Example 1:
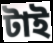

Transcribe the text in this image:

টাই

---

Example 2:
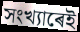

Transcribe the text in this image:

সংখ্যাৰেই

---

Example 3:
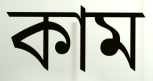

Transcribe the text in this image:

কাম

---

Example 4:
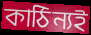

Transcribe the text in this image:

কাঠিন্যই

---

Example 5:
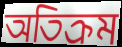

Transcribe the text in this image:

অতিক্ৰম